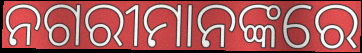
ନଗରୀମାନଙ୍କରେ